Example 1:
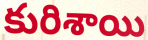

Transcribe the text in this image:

కురిశాయి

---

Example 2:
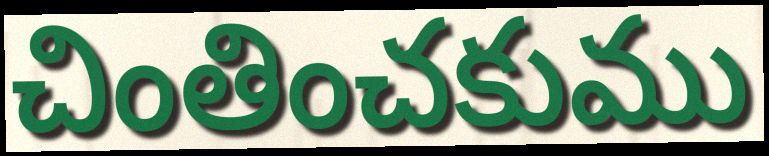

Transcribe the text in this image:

చింతించకుము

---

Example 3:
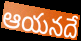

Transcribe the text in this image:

ఆయనదే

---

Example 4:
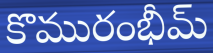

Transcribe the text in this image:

కొమురంభీమ్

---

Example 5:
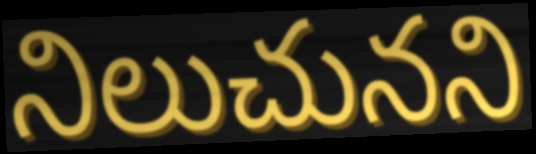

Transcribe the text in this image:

నిలుచునని